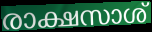
രാക്ഷസാശ്